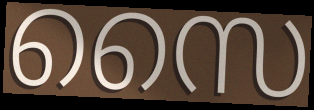
സൈ